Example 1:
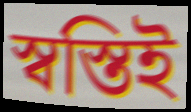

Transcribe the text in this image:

স্বস্তিই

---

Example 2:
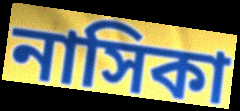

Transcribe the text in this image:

নাসিকা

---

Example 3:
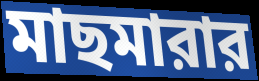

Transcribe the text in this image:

মাছমারার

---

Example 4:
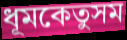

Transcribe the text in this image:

ধূমকেতুসম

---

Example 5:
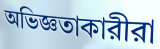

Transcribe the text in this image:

অভিজ্ঞতাকারীরা